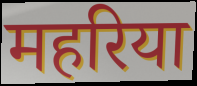
महरिया